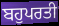
ਬਹੁਪਰਤੀ